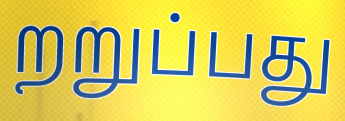
றறுப்பது